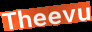
Theevu